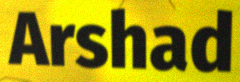
Arshad